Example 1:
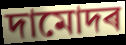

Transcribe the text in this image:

দামোদৰ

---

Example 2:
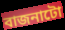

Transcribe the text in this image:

বাজনাটো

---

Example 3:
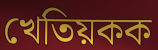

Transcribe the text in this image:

খেতিয়কক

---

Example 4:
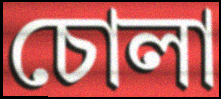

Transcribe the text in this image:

চোলা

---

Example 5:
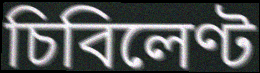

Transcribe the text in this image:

চিবিলেণ্ট